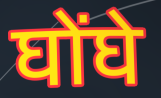
घोंघे